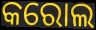
କରୋଲ